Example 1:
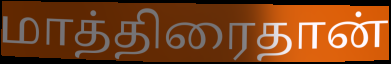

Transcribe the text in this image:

மாத்திரைதான்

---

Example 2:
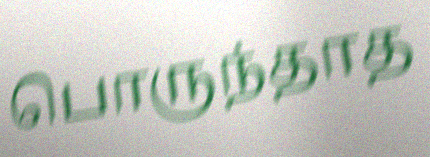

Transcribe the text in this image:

பொருந்தாத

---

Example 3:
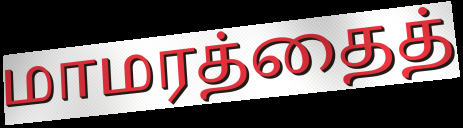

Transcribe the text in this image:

மாமரத்தைத்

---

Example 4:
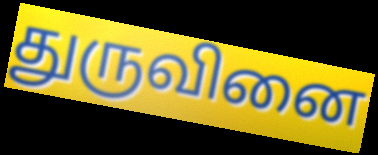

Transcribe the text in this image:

துருவினை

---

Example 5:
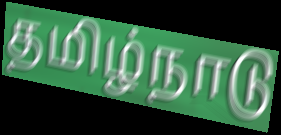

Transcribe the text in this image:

தமிழ்நாடு